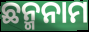
ଛନ୍ମନାମ